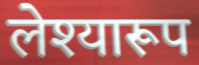
लेश्यारूप